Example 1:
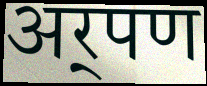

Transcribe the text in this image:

अर्पण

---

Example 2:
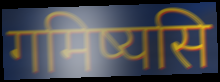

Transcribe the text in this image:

गमिष्यसि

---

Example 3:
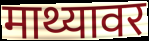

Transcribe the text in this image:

माथ्यावर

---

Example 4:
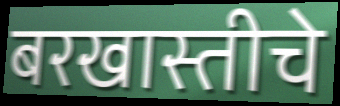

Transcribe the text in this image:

बरखास्तीचे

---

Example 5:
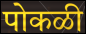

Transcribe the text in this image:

पोकळी